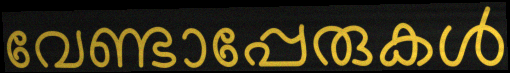
വേണ്ടാപ്പേരുകൾ